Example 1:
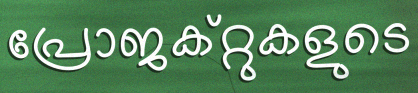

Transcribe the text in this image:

പ്രോജക്റ്റുകളുടെ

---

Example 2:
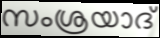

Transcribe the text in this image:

സംശ്രയാദ്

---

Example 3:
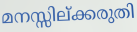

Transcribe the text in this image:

മനസ്സില്ക്കരുതി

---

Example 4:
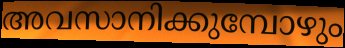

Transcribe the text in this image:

അവസാനിക്കുമ്പോഴും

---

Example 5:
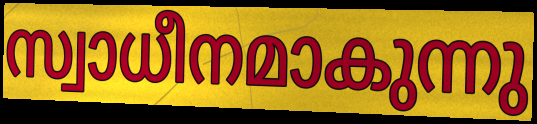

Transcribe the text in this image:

സ്വാധീനമാകുന്നു